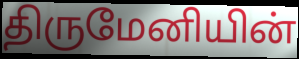
திருமேனியின்